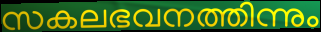
സകലഭവനത്തിന്നും